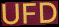
UFD